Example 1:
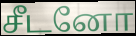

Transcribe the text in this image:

சீடனோ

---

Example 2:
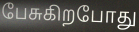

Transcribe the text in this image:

பேசுகிறபோது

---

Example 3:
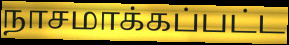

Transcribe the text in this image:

நாசமாக்கப்பட்ட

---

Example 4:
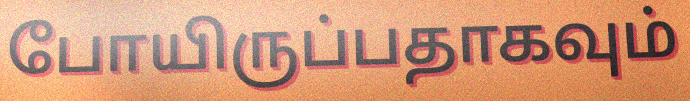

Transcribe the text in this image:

போயிருப்பதாகவும்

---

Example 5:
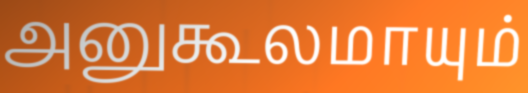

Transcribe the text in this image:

அனுகூலமாயும்